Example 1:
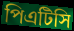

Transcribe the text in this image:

পিএটিসি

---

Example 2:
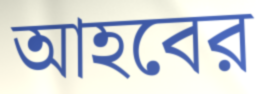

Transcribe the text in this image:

আহবের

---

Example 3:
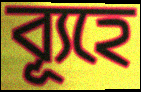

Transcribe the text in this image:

ব্যূহে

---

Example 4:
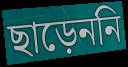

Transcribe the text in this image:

ছাড়েননি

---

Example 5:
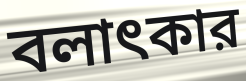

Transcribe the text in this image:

বলাৎকার